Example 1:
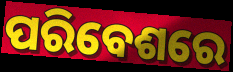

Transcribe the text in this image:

ପରିବେଶରେ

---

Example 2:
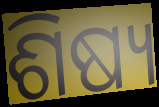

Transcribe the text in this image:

ଶିଷ୍ୟ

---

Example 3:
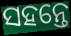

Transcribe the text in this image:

ସହନ୍ତେ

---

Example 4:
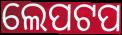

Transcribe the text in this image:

ଲେପଟପ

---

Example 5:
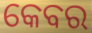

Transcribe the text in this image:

କେବର